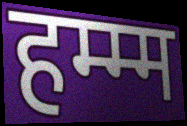
हम्म्म